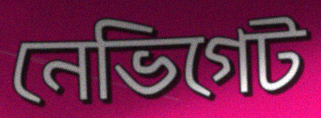
নেভিগেট